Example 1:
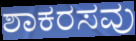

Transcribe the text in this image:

ಶಾಕರಸವು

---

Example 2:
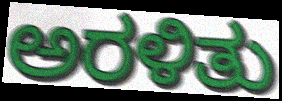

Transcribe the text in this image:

ಅರಳಿತು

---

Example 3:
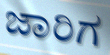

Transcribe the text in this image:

ಜಾರಿಗ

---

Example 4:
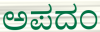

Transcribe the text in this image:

ಅಪದಂ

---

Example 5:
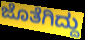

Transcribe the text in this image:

ಜೊತೆಗಿದ್ದು